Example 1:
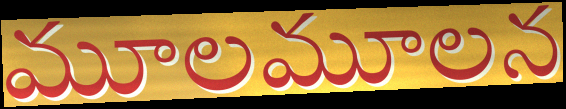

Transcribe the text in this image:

మూలమూలన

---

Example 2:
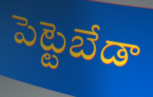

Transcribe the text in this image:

పెట్టెబేడా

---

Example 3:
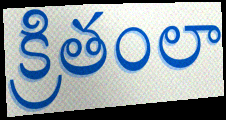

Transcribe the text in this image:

క్రితంలా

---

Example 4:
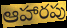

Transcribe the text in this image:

ఆహారపు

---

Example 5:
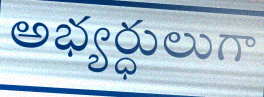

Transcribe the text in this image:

అభ్యర్ధులుగా